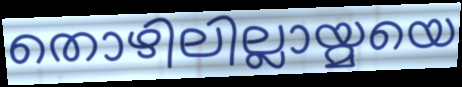
തൊഴിലില്ലായ്മയെ